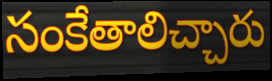
సంకేతాలిచ్చారు